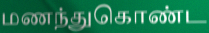
மணந்துகொண்ட